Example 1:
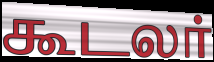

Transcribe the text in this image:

கூடலர்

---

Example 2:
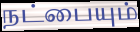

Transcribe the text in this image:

நட்பையும்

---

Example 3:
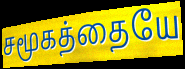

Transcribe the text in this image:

சமூகத்தையே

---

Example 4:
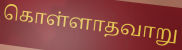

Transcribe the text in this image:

கொள்ளாதவாறு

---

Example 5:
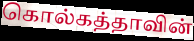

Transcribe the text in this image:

கொல்கத்தாவின்